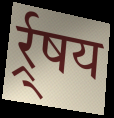
र्र्र्षय